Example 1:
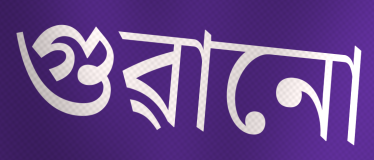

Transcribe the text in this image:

গুৱানো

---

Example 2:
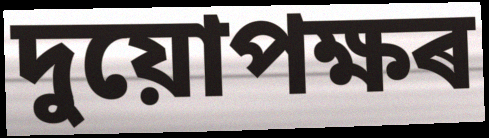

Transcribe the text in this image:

দুয়োপক্ষৰ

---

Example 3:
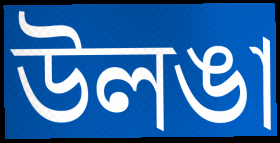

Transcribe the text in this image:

উলঙা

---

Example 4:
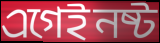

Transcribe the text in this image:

এগেইনষ্ট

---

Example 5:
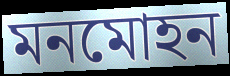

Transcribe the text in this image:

মনমোহন